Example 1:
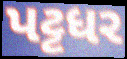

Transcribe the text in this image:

પટ્ટધર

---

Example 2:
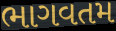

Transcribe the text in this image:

ભાગવતમ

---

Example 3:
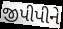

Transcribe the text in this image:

જીપીપીને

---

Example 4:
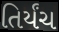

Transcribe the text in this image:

તિર્યંચ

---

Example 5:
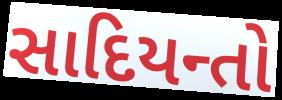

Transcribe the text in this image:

સાદિયન્તો